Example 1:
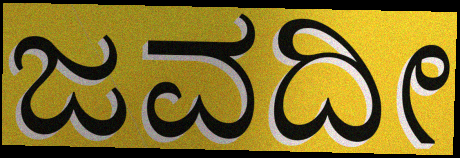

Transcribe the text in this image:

ಜವದೀ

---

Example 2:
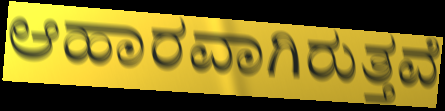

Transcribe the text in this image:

ಆಹಾರವಾಗಿರುತ್ತವೆ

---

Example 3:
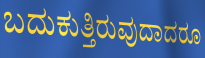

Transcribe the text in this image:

ಬದುಕುತ್ತಿರುವುದಾದರೂ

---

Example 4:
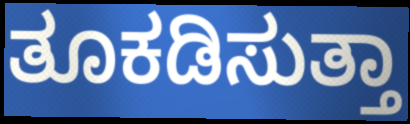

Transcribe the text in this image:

ತೂಕಡಿಸುತ್ತಾ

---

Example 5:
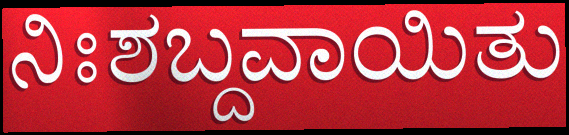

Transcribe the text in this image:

ನಿಃಶಬ್ದವಾಯಿತು